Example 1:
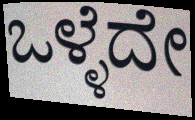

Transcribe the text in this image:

ಒಳ್ಳೆದೇ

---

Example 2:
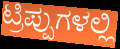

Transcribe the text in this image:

ಟ್ರಿಪ್ಪುಗಳಲ್ಲಿ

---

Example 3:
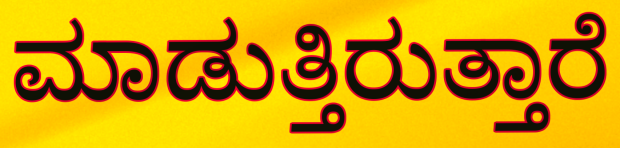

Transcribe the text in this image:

ಮಾಡುತ್ತಿರುತ್ತಾರೆ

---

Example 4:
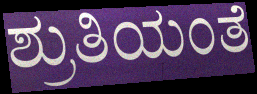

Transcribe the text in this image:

ಶ್ರುತಿಯಂತೆ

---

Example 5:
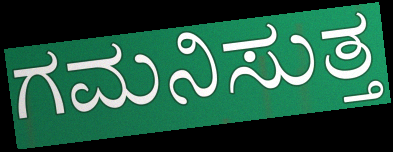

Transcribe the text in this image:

ಗಮನಿಸುತ್ತ